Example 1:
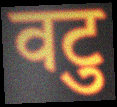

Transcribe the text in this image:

वटु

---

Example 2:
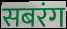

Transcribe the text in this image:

सबरंग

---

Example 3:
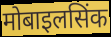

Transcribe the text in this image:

मोबाइलसिंक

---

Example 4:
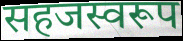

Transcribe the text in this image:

सहजस्वरूप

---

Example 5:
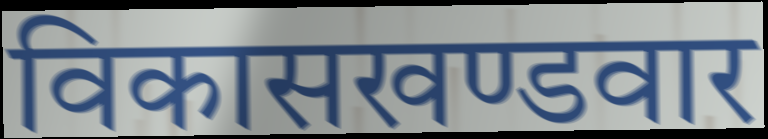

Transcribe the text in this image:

विकासखण्‍डवार